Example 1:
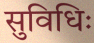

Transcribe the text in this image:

सुविधिः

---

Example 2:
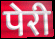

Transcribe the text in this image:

पेरी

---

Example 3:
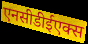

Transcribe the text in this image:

एनसीडीईएक्स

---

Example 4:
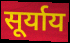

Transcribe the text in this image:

सूर्याय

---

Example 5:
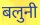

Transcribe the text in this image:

बलुनी